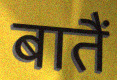
बातैं